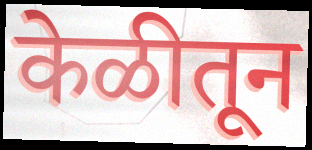
केळीतून